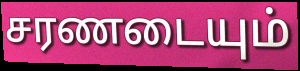
சரணடையும்